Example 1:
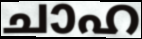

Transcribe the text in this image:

ചാഹ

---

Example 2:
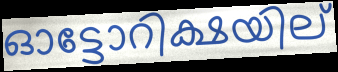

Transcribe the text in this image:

ഓട്ടോറിക്ഷയില്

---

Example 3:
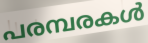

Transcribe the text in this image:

പരമ്പരകൾ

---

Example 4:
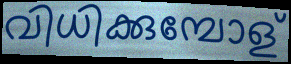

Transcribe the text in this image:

വിധിക്കുമ്പോള്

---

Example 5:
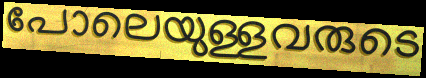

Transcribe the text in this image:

പോലെയുള്ളവരുടെ